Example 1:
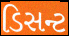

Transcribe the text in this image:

ડિસન્ટ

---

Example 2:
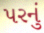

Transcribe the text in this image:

પરનું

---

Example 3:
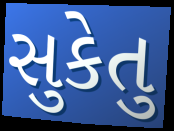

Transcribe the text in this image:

સુકેતુ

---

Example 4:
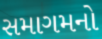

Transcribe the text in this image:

સમાગમનો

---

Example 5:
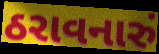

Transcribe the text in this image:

ઠરાવનારું